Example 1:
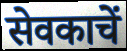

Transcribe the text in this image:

सेवकाचें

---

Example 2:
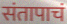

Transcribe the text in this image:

संतापाचं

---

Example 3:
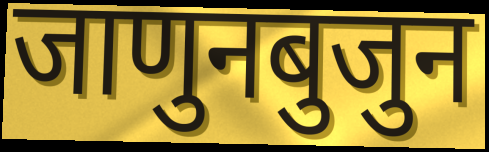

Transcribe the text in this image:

जाणुनबुजुन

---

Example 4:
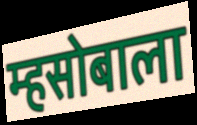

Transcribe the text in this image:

म्हसोबाला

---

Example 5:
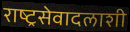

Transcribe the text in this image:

राष्ट्रसेवादलाशी